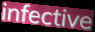
infective